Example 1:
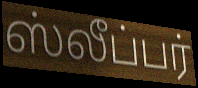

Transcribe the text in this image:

ஸ்லீப்பர்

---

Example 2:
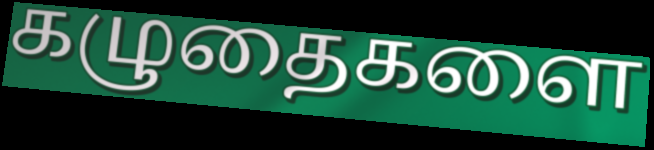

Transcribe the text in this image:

கழுதைகளை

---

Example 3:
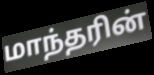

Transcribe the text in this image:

மாந்தரின்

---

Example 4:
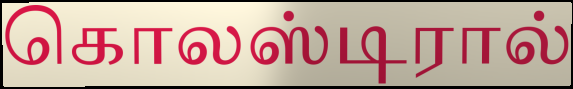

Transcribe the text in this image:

கொலஸ்டிரால்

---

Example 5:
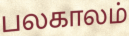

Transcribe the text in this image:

பலகாலம்